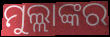
ମୁଲ୍ଲାଙ୍କର